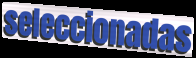
seleccionadas